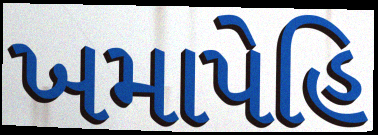
ખમાપેહિ